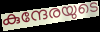
കുന്ദേരയുടെ